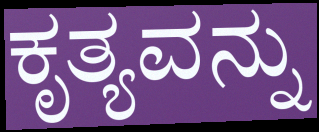
ಕೃತ್ಯವನ್ನು